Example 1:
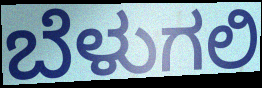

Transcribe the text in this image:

ಬೆಳುಗಲಿ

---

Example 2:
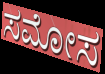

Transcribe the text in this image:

ಸಮೋಸ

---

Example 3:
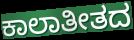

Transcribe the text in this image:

ಕಾಲಾತೀತದ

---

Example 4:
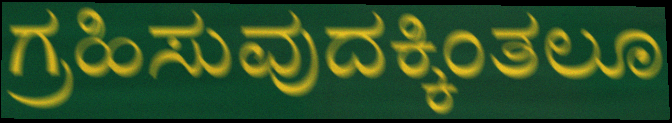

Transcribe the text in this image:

ಗ್ರಹಿಸುವುದಕ್ಕಿಂತಲೂ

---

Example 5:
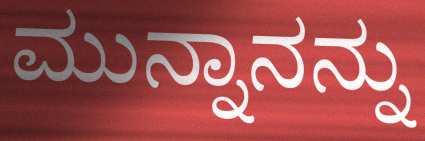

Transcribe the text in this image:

ಮುನ್ನಾನನ್ನು